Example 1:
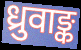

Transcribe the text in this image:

ध्रुवाङ्क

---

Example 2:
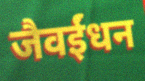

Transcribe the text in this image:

जैवईंधन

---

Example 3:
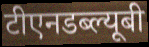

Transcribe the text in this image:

टीएनडब्ल्यूबी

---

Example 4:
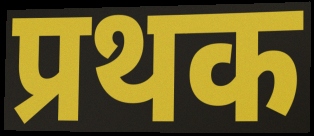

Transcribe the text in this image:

प्रथक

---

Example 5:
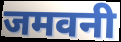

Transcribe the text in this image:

जमवनी